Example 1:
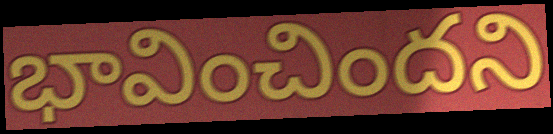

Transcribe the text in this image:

భావించిందని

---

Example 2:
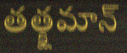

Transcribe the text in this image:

తత్క్షమాన్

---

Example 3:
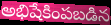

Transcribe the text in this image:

అభిషేకింపబడిన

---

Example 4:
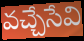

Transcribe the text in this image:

వచ్చేసేవి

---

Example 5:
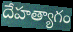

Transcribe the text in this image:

దేహత్యాగం